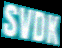
SVDK